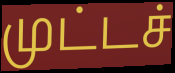
முட்டச்